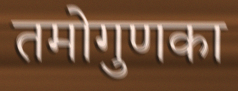
तमोगुणका